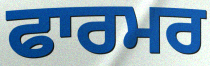
ਫਾਰਮਰ